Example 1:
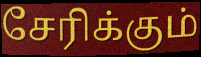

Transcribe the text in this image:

சேரிக்கும்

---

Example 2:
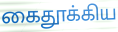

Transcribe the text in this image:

கைதூக்கிய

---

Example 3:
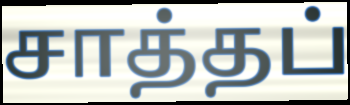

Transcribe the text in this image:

சாத்தப்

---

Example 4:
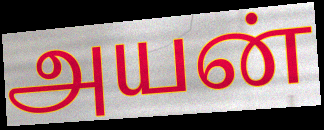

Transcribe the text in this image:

அயன்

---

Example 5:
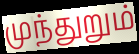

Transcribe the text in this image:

முந்துறும்